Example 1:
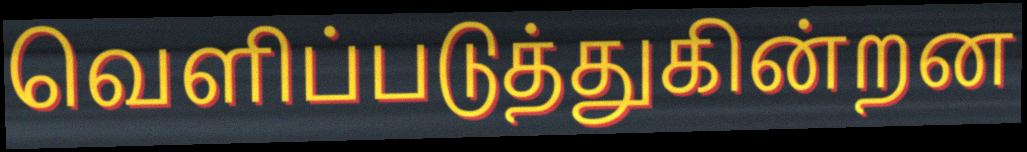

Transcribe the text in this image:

வெளிப்படுத்துகின்றன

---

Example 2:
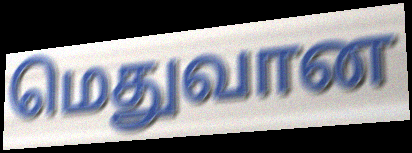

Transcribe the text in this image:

மெதுவான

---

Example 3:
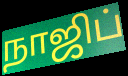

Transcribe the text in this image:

நாஜிப்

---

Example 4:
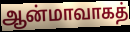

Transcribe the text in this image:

ஆன்மாவாகத்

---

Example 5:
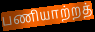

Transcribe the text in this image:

பணியாற்றத்